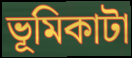
ভূমিকাটা